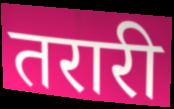
तरारी